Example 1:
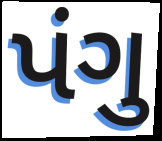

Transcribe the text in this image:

પંગુ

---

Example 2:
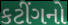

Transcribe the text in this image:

કટીંગનો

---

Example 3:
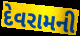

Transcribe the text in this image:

દેવરામની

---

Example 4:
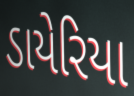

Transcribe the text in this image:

ડાયેરિયા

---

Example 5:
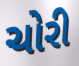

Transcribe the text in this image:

ચોરી